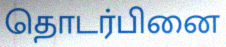
தொடர்பினை